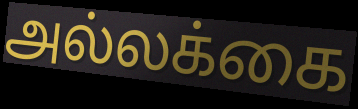
அல்லக்கை